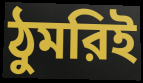
ঠুমরিই